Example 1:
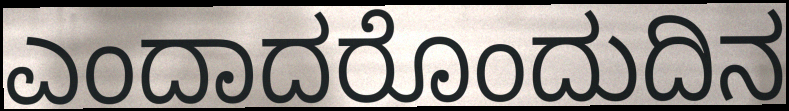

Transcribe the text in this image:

ಎಂದಾದರೊಂದುದಿನ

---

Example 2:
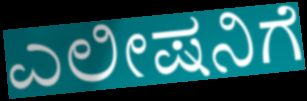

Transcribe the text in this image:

ಎಲೀಷನಿಗೆ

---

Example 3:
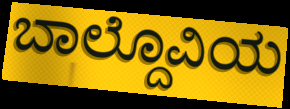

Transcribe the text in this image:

ಬಾಲ್ದೊವಿಯ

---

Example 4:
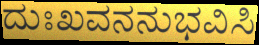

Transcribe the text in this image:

ದುಃಖವನನುಭವಿಸಿ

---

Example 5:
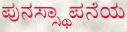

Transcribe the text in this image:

ಪುನಸ್ಸ್ಥಾಪನೆಯ